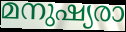
മനുഷ്യരാ